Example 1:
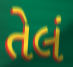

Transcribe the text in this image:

તેલં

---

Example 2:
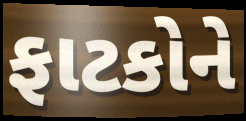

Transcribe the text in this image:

ફાટકોને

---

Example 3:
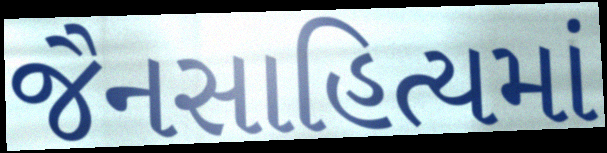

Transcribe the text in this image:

જૈનસાહિત્યમાં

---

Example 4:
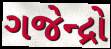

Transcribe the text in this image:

ગજેન્દ્રો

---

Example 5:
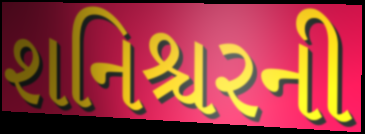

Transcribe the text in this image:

શનિશ્ચરની